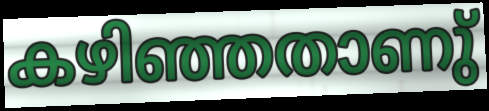
കഴിഞ്ഞതാണു്